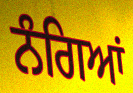
ਨੰਗਿਆਂ